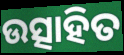
ଉତ୍ସାହିତ